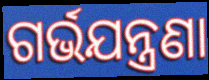
ଗର୍ଭଯନ୍ତ୍ରଣା